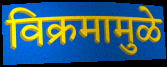
विक्रमामुळे